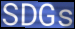
SDGs